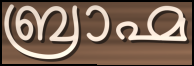
ബ്രാഹ്മ